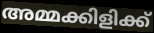
അമ്മക്കിളിക്ക്